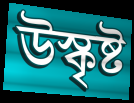
উস্কৃষ্ট